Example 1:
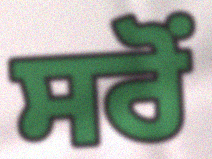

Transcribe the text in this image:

ਸਰੋਂ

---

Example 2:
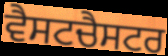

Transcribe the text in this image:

ਵੈਸਟਚੈਸਟਰ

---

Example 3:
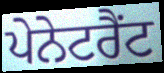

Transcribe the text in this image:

ਪੇਨੇਟਰੈਂਟ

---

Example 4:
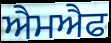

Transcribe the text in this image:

ਐਮਐਫ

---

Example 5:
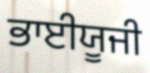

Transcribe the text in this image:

ਭਾਈਯੂਜੀ